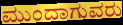
ಮುಂದಾಗುವರು